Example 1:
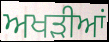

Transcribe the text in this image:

ਅਖੜੀਆਂ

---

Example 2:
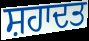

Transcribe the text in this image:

ਸ਼ਹਾਦਤ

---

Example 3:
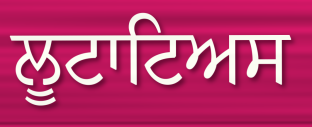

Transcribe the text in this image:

ਲੂਟਾਟਿਅਸ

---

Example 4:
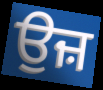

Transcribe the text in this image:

ਉਜ਼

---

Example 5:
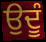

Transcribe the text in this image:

ਉਦੂੰ